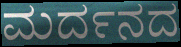
ಮರ್ದನದ